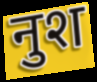
नुश